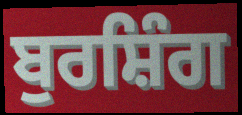
ਬੁਰਸ਼ਿੰਗ